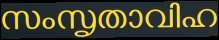
സംസൃതാവിഹ